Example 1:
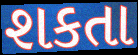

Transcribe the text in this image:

શકતા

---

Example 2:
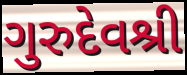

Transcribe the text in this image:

ગુરુદેવશ્રી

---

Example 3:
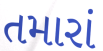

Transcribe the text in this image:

તમારાં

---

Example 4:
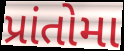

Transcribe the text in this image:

પ્રાંતોમા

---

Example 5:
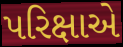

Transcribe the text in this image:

પરિક્ષાએ